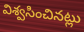
విశ్వసించినట్లు